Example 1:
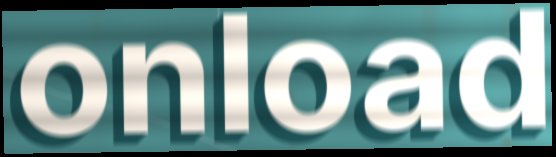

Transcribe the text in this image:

onload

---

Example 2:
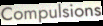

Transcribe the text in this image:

Compulsions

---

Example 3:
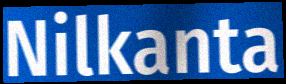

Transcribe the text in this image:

Nilkanta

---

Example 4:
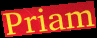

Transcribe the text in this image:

Priam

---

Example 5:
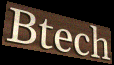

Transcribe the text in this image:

Btech